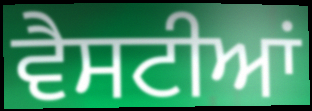
ਵੈਸਟੀਆਂ